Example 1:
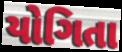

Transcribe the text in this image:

યોગિતા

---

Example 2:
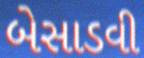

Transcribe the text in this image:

બેસાડવી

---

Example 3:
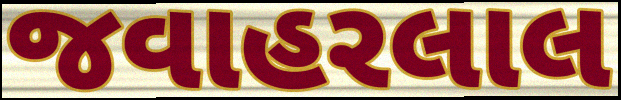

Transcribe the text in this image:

જવાહરલાલ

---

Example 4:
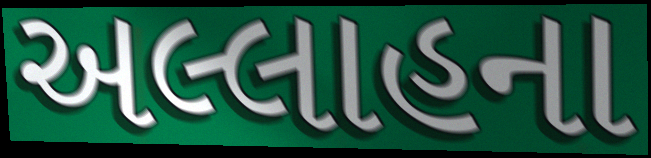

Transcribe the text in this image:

અલ્લાહના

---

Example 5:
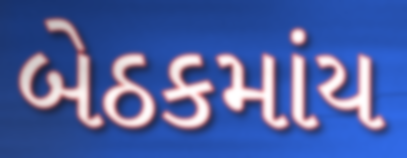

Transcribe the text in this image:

બેઠકમાંય